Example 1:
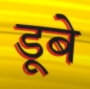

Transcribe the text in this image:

डूबे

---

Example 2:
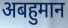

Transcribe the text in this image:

अबहुमान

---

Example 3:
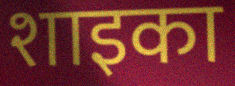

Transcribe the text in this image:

शाइका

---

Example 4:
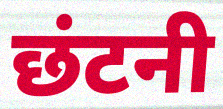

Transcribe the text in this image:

छंटनी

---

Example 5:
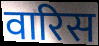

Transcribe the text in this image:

वारिस